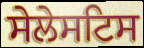
ਸੇਲੇਸਟਿਸ